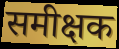
समीक्षक